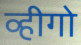
व्हीगो